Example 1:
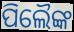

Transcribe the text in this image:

ପିଲୈଙ୍କ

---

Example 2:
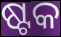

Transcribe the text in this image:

ଷ୍ଟକ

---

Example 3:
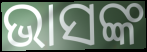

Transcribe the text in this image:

ଭାସଙ୍କ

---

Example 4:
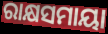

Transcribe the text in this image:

ରାକ୍ଷସମାୟା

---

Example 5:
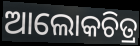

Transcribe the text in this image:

ଆଲୋକଚିତ୍ର